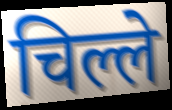
चिल्ले